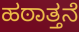
ಹಠಾತ್ತನೆ